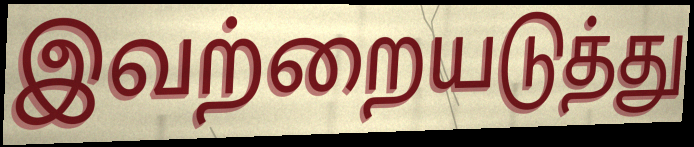
இவற்றையடுத்து